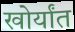
खोर्यांत